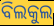
ବିଲକୁଲ